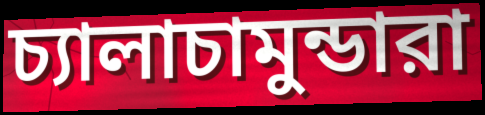
চ্যালাচামুন্ডারা